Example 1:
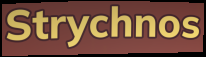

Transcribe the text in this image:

Strychnos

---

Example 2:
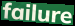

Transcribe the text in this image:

failure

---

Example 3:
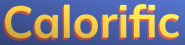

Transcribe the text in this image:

Calorific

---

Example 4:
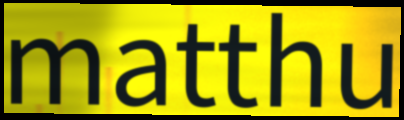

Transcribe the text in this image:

matthu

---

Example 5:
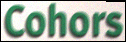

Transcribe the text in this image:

Cohors